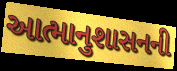
આત્માનુશાસનની